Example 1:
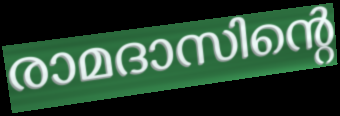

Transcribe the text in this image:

രാമദാസിന്റെ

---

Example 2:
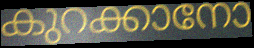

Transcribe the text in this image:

കുറക്കാനോ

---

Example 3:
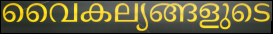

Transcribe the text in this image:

വൈകല്യങ്ങളുടെ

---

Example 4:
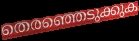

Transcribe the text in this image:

തെരഞ്ഞെടുക്കുക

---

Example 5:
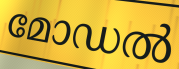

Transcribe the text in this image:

മോഡൽ